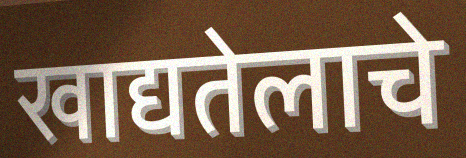
खाद्यतेलाचे